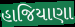
હાજિયાણા